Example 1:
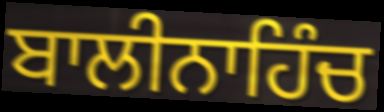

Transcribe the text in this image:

ਬਾਲੀਨਾਹਿੰਚ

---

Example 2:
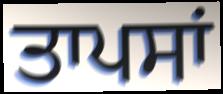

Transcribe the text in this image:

ਤਾਪਸਾਂ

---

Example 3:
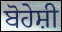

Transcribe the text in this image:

ਬੋਹੇਸ਼ੀ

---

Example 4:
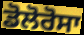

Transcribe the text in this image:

ਡੋਲੋਰੋਸਾ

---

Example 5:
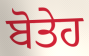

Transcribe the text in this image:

ਬੋਤੇਹ